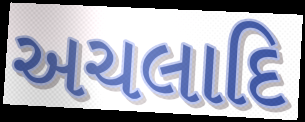
અચલાદિ